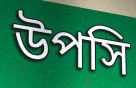
উপসি